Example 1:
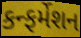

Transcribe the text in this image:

કન્ફર્મેશન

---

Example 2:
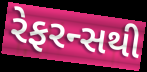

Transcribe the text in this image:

રેફરન્સથી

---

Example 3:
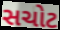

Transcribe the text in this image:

સચોટ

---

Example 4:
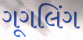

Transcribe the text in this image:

ગૂગલિંગ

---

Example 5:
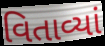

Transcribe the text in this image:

વિતાવ્યાં